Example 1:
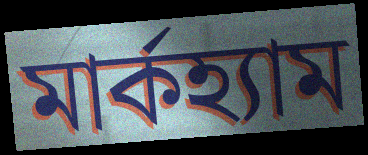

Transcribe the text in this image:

মার্কহ্যাম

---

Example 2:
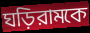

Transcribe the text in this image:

ঘড়িরামকে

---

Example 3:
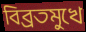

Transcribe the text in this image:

বিব্রতমুখে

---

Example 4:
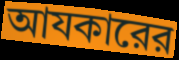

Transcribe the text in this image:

আযকারের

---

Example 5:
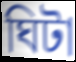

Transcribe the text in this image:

ঘিটা